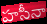
హసీనా